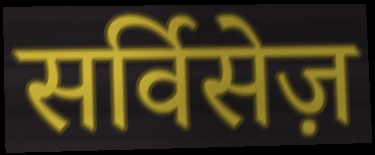
सर्विसेज़